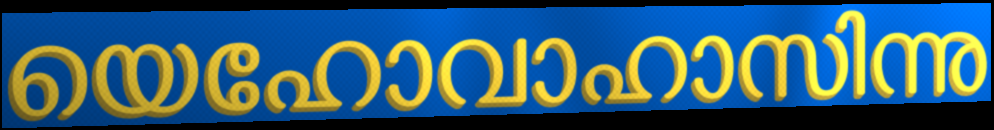
യെഹോവാഹാസിന്നു